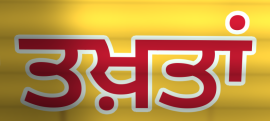
ਤਖ਼ਤਾਂ